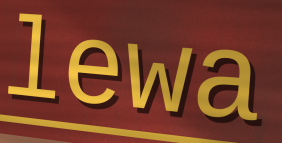
lewa